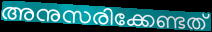
അനുസരിക്കേണ്ടത്